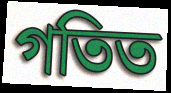
গতিত